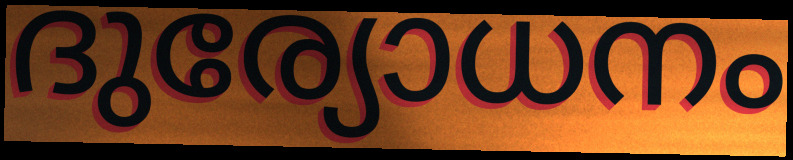
ദുര്യോധനം